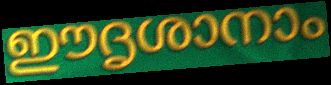
ഈദൃശാനാം